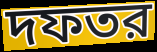
দফতর